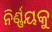
ନିର୍ଣ୍ଣୟକୁ